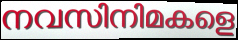
നവസിനിമകളെ